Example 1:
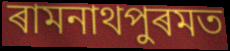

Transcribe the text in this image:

ৰামনাথপুৰমত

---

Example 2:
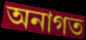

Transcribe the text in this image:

অনাগত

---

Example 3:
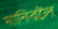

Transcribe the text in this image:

মানিবলৈ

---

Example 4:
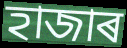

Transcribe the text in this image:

হাজাৰ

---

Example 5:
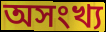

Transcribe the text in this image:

অসংখ্য